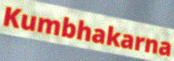
Kumbhakarna